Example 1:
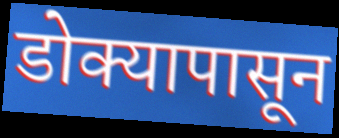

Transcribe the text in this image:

डोक्यापासून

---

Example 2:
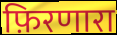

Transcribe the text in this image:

फ़िरणारा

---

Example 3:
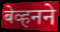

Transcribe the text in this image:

बेव्हनने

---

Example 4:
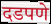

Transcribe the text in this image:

दडपणे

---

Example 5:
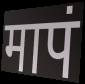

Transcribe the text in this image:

मापं